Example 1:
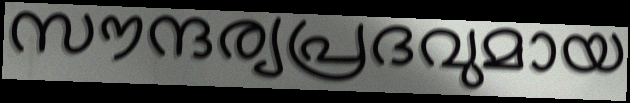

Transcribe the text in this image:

സൗന്ദര്യപ്രദവുമായ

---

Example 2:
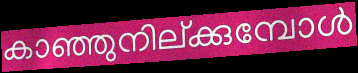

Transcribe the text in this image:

കാഞ്ഞുനില്ക്കുമ്പോൾ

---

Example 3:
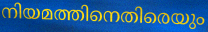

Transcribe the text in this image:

നിയമത്തിനെതിരെയും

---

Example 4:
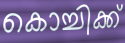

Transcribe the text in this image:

കൊച്ചിക്ക്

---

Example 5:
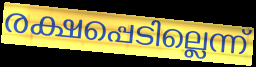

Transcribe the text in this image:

രക്ഷപ്പെടില്ലെന്ന്